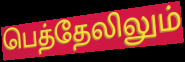
பெத்தேலிலும்